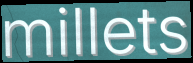
millets